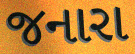
જનારા